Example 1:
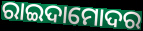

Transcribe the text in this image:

ରାଇଦାମୋଦର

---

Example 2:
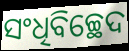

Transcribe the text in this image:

ସଂଧିବିଚ୍ଛେଦ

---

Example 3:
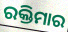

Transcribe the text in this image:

ରକ୍ତିମାର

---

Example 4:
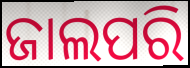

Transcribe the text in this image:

ଜାଲପରି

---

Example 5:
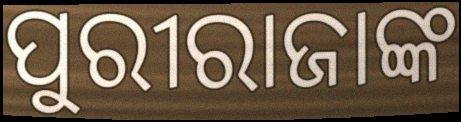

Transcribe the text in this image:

ପୁରୀରାଜାଙ୍କ